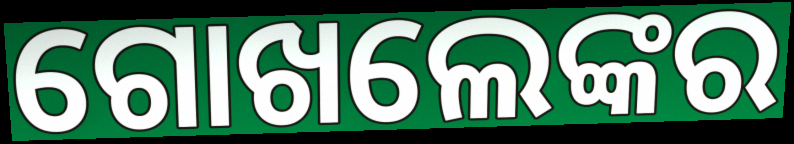
ଗୋଖଲେଙ୍କର